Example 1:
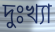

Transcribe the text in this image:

দুঃখ্যা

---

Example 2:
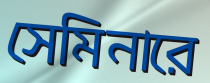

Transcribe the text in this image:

সেমিনারে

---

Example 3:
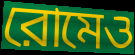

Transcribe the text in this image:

রোমেও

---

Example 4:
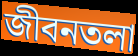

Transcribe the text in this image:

জীবনতলা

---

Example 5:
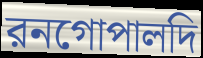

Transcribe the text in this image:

রনগোপালদি